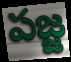
పజ్జ